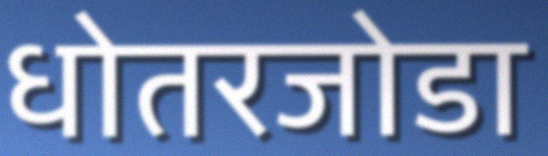
धोतरजोडा